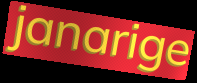
janarige